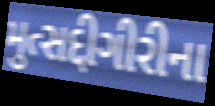
મુત્સદ્દીગીરીના